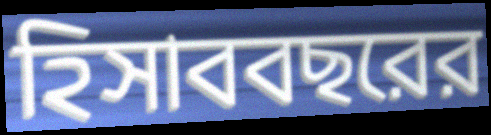
হিসাববছরের